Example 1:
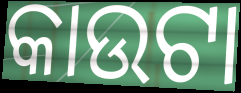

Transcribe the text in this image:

କାଉଟା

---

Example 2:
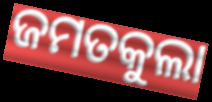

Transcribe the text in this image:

ଜମତକୁଲା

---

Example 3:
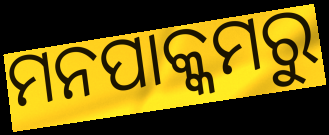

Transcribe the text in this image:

ମନପାକ୍କମରୁ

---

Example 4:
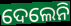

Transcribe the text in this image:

ଦେଲେନି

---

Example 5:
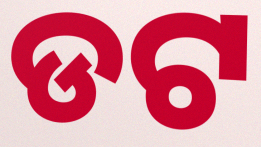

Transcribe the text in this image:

ଡଟ